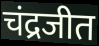
चंद्रजीत